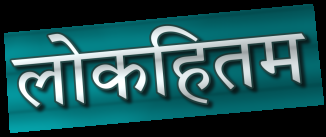
लोकहितम